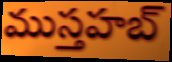
ముస్తహబ్